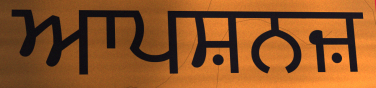
ਆਪਸ਼ਨਜ਼